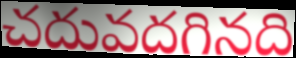
చదువదగినది